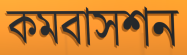
কমবাসশন